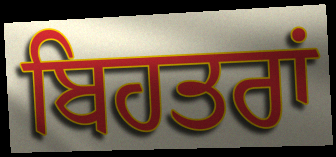
ਬਿਹਤਰਾਂ